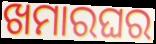
ଖମାରଘର